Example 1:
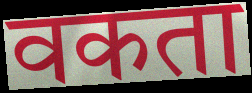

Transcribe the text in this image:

वकता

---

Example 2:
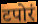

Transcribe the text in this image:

टपोरं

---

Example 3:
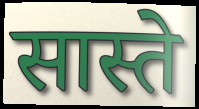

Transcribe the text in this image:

सास्ते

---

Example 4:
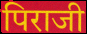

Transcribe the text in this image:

पिराजी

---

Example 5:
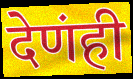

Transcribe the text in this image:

देणंही